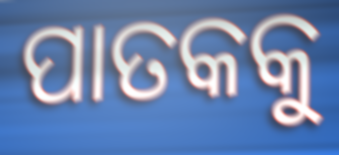
ପାତକକୁ